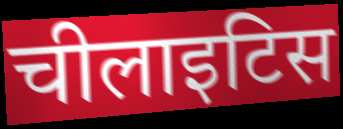
चीलाइटिस